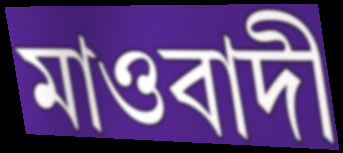
মাওবাদী